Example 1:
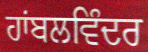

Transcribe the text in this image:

ਹਾਂਬਲਵਿੰਦਰ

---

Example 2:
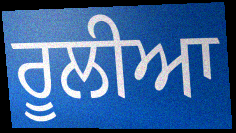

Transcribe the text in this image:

ਰੂਲੀਆ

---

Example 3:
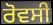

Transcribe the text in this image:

ਰੋਵਸੀ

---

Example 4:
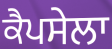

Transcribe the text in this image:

ਕੈਪਸੇਲਾ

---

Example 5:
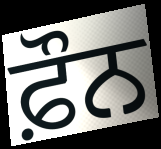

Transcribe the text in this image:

ਫ਼ੌਨ